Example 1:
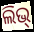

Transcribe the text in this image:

ଲିଭ୍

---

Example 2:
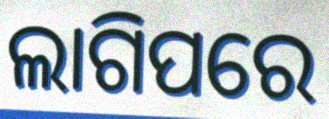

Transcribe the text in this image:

ଲାଗିପରେ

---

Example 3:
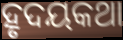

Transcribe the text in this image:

ହୃଦୟକଥା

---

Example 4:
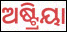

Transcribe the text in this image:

ଅଷ୍ଟ୍ରିୟା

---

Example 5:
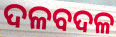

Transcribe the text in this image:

ଦଳବଦଳ